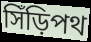
সিঁড়িপথ